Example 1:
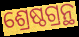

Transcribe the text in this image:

ଶ୍ରେଷ୍ଠଗ୍ରନ୍ଥ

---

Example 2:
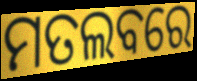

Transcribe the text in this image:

ମତଲବରେ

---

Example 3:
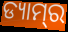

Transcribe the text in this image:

ଡ୍ୟାମ୍‍ର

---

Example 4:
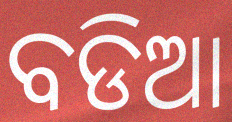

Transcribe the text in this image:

ବଡିଆ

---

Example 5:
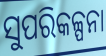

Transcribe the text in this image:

ସୁପରିକଳ୍ପନା